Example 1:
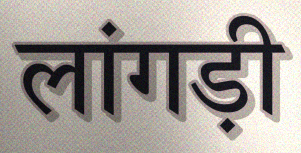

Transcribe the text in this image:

लांगड़ी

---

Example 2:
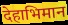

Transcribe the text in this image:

देहाभिमान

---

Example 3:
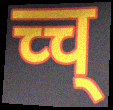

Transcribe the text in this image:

च्च्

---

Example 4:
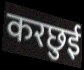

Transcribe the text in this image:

करछुई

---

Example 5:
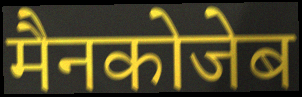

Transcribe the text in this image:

मैनकोजेब